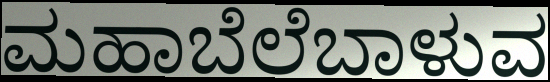
ಮಹಾಬೆಲೆಬಾಳುವ